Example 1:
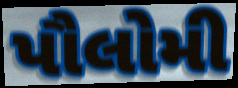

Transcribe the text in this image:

પૌલોમી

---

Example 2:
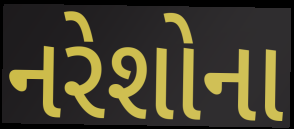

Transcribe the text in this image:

નરેશોના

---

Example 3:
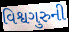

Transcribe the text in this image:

વિશ્વગુરુની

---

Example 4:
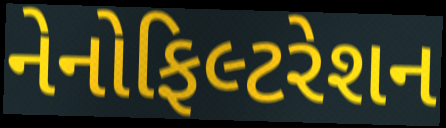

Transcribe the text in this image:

નેનોફિલ્ટરેશન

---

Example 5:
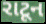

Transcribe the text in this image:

રાટૂન